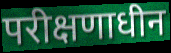
परीक्षणाधीन